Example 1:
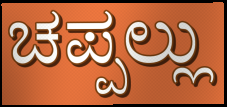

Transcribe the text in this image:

ಚಪ್ಪಲ್ಲು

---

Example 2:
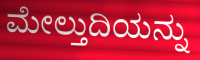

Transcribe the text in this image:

ಮೇಲ್ತುದಿಯನ್ನು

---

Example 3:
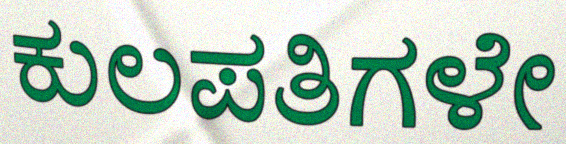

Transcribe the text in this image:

ಕುಲಪತಿಗಳೇ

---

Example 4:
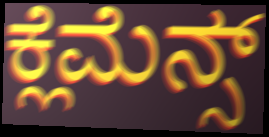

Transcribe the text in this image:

ಕ್ಲೆಮೆನ್ಸ್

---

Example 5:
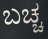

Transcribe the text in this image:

ಬಚ್ಚ